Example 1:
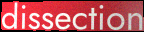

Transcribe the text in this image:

dissection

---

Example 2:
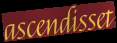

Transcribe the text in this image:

ascendisset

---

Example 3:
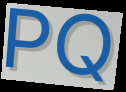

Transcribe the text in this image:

PQ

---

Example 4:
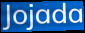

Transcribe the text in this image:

Jojada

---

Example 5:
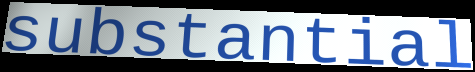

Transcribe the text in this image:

substantial